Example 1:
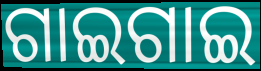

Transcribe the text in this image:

ଗାଇଗାଇ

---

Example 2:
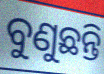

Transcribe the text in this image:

ବୁଣୁଛନ୍ତି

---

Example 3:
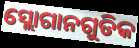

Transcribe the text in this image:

ସ୍ଲୋଗାନଗୁଡିକ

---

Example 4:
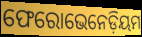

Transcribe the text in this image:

ଫେରୋଭେନେଡ଼ିୟମ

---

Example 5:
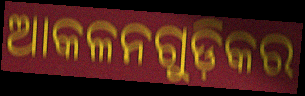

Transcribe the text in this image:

ଆକଳନଗୁଡ଼ିକର